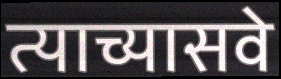
त्याच्यासवे